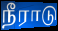
நீராடு